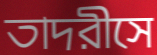
তাদরীসে